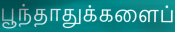
பூந்தாதுக்களைப்